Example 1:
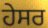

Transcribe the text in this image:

ਹੇਸਰ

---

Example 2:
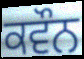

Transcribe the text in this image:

ਕਵੌਨ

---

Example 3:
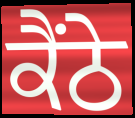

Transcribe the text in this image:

ਕੈਂਠੇ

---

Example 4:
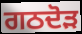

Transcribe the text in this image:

ਗਠਦੋੜ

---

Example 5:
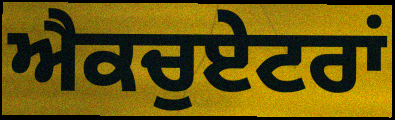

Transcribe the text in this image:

ਐਕਚੁਏਟਰਾਂ